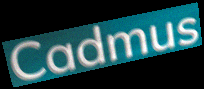
Cadmus